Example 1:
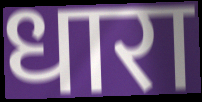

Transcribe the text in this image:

धारा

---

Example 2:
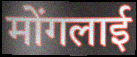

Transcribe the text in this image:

मोंगलाई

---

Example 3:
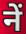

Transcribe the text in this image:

नें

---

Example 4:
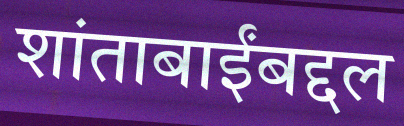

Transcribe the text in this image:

शांताबाईंबद्दल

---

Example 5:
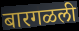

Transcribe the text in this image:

बारगळली